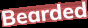
Bearded